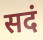
सदं